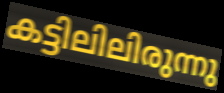
കട്ടിലിലിരുന്നു